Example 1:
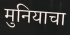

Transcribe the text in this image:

मुनियाचा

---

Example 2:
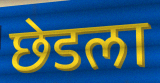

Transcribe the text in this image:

छेडला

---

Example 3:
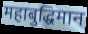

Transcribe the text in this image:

महाबुद्धिमान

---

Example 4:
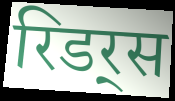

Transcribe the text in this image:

रिडर्स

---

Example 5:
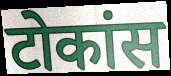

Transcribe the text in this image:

टोकांस